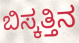
ಬಿಸ್ಕತ್ತಿನ